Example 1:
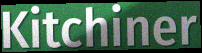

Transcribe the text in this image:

Kitchiner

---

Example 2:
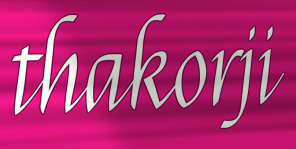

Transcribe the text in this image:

thakorji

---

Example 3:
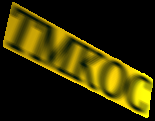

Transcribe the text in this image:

TMKOC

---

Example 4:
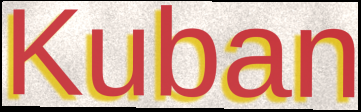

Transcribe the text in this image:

Kuban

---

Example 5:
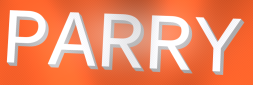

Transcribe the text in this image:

PARRY